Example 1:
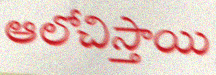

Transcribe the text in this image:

ఆలోచిస్తాయి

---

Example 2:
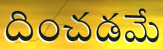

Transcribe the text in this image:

దించడమే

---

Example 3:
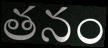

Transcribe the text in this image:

తనం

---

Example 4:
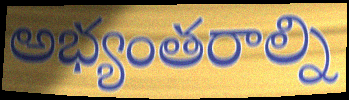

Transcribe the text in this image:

అభ్యంతరాల్ని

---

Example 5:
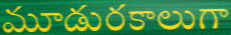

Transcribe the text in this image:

మూడురకాలుగా